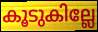
കൂടുകില്ലേ